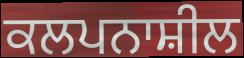
ਕਲਪਨਾਸ਼ੀਲ